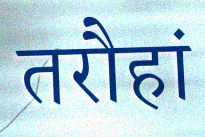
तरौहां